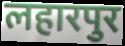
लहारपुर